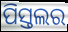
ପିସ୍ତଲର